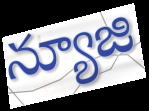
న్యూజి